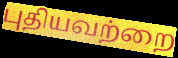
புதியவற்றை